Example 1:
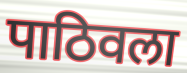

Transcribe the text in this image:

पाठिवला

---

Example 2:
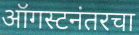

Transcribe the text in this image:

ऑगस्टनंतरचा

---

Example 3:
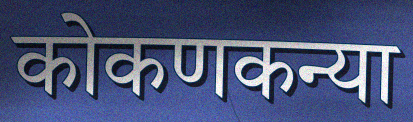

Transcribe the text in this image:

कोकणकन्या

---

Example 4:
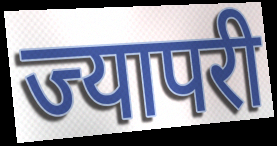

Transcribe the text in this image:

ज्यापरी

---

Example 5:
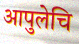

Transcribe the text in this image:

आपुलेचि